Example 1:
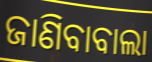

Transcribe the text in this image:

ଜାଣିବାବାଲା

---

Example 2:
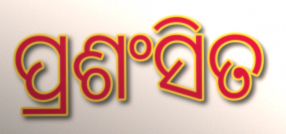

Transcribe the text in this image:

ପ୍ରଶଂସିତ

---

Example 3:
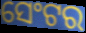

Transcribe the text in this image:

ସେଂଟର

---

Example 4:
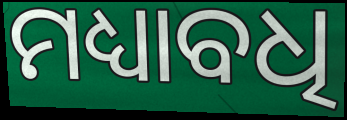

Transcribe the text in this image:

ମଧ୍ୟାବଧି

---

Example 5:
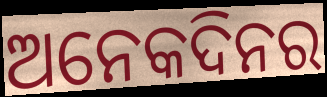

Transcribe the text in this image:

ଅନେକଦିନର